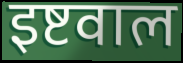
इष्टवाल